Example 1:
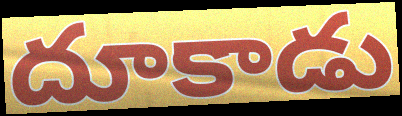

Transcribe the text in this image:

దూకాడు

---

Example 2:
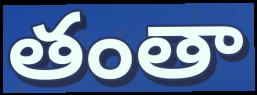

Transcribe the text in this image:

తంతా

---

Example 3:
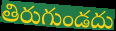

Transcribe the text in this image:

తిరుగుండదు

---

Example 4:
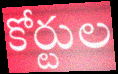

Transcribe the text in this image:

కోర్టుల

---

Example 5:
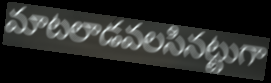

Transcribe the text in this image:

మాటలాడవలసినట్టుగా